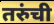
तरुंची